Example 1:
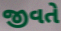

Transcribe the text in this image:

જીવતે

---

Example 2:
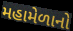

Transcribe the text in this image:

મહામેળાનો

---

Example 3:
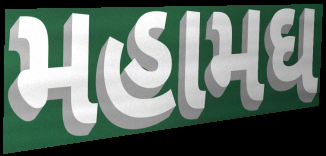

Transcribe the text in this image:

મહામઘ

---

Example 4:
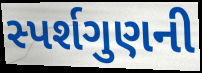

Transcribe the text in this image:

સ્પર્શગુણની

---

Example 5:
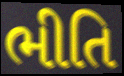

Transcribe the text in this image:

ભીતિ